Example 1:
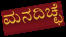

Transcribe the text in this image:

ಮನದಿಚ್ಛೆ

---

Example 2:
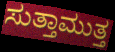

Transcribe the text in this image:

ಸುತ್ತಾಮುತ್ತ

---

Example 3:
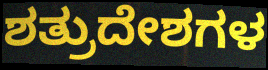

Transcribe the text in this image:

ಶತ್ರುದೇಶಗಳ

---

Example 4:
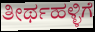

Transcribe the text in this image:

ತೀರ್ಥಹಳ್ಳಿಗೆ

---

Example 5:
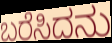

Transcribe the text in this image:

ಬರೆಸಿದನು